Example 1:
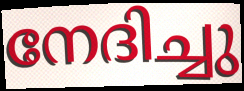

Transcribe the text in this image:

നേദിച്ചു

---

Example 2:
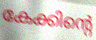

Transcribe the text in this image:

കേക്കിന്റെ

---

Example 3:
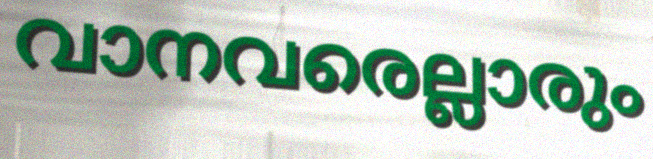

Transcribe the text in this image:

വാനവരെല്ലാരും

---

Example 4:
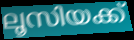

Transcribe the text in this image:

ലൂസിയക്ക്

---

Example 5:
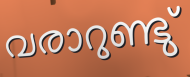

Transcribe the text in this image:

വരാറുണ്ടു്